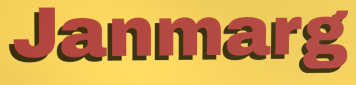
Janmarg